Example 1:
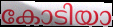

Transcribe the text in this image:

കോടിയാ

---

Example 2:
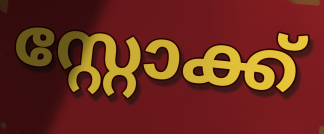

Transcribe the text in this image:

സ്റ്റോക്ക്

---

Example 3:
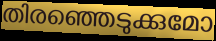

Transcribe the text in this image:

തിരഞ്ഞെടുക്കുമോ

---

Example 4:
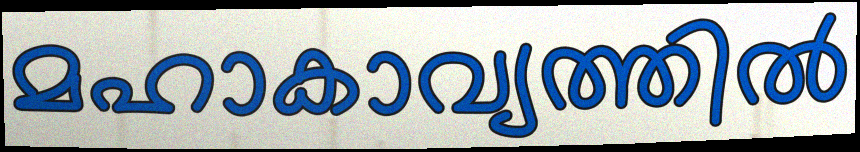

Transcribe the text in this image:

മഹാകാവ്യത്തിൽ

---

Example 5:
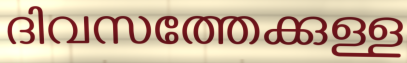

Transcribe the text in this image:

ദിവസത്തേക്കുള്ള